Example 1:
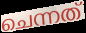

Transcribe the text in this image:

ചെന്നത്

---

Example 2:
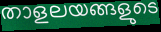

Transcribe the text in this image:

താളലയങ്ങളുടെ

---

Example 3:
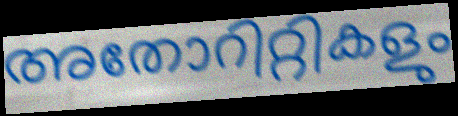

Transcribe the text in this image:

അതോറിറ്റികളും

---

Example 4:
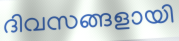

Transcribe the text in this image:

ദിവസങ്ങളായി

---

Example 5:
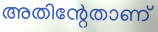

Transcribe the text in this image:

അതിന്റേതാണ്